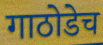
गाठोडेच